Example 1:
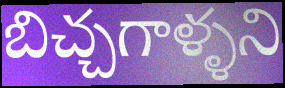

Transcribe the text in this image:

బిచ్చగాళ్ళని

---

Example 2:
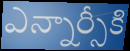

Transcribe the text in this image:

ఎన్నార్సీకి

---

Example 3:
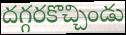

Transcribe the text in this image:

దగ్గరకొచ్చిండు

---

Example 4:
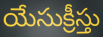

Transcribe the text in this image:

యేసుక్రీస్తు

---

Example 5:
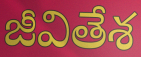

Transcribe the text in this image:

జీవితేశ